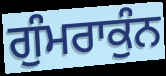
ਗੁੰਮਰਾਕੁੰਨ